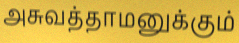
அசுவத்தாமனுக்கும்